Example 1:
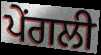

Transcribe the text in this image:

ਪੇਂਗਲੀ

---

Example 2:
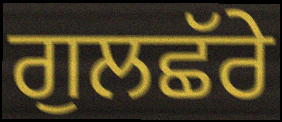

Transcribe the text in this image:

ਗੁਲਛੱਰੇ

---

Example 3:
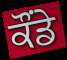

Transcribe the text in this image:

ਕੌਂਡੇ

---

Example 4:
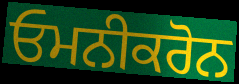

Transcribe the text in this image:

ਓਮਨੀਕਰੋਨ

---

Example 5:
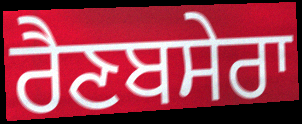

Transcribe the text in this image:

ਰੈਣਬਸੇਰਾ